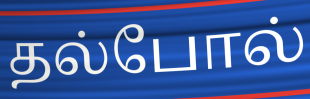
தல்போல்